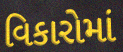
વિકારોમાં